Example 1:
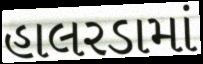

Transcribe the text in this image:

હાલરડામાં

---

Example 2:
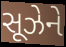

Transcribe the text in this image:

સૂઝેને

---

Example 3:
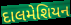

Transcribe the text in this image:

દાલમેશિયન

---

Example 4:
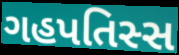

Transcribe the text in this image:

ગહપતિસ્સ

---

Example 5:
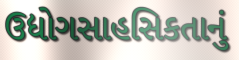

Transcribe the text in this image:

ઉદ્યોગસાહસિકતાનું